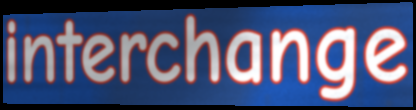
interchange